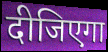
दीजिएगा